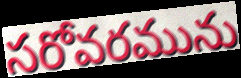
సరోవరమును